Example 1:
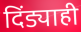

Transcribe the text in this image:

दिंड्याही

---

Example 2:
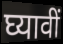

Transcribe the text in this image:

घ्यावीं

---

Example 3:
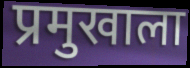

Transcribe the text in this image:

प्रमुखाला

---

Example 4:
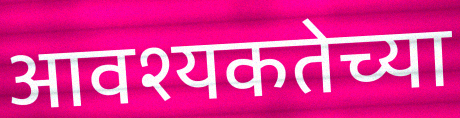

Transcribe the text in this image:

आवश्यकतेच्या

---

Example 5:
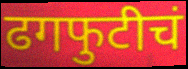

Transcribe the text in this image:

ढगफुटीचं